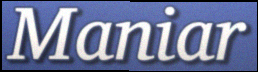
Maniar